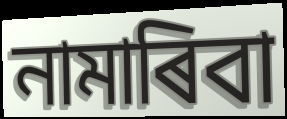
নামাৰিবা